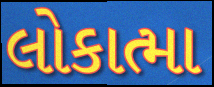
લોકાત્મા